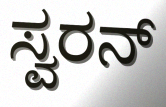
ಸ್ವರನ್